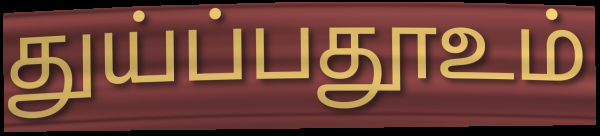
துய்ப்பதூஉம்